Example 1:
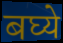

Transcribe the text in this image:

बघ्ये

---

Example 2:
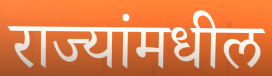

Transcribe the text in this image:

राज्यांमधील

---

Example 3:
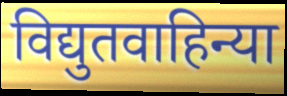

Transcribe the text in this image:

विद्युतवाहिन्या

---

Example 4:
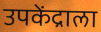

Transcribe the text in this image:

उपकेंद्राला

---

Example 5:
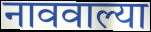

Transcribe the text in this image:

नाववाल्या